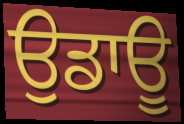
ਉਡਾਊ